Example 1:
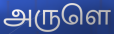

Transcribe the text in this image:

அருளெ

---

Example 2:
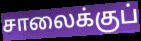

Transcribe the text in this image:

சாலைக்குப்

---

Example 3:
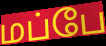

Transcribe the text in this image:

மப்பே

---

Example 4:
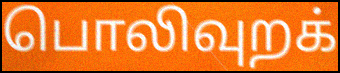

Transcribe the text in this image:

பொலிவுறக்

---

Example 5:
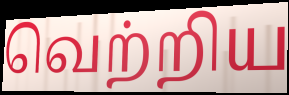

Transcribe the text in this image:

வெற்றிய